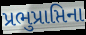
પ્રભુપ્રાપ્તિના